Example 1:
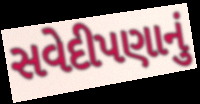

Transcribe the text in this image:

સવેદીપણાનું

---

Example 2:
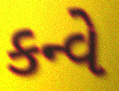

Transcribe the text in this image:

કન્વે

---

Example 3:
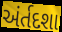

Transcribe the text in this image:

અંર્તદશા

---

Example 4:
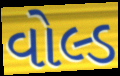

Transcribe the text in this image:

વોલ્ડ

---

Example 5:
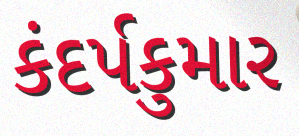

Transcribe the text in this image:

કંદર્પકુમાર